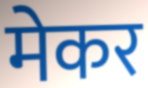
मेकर